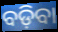
ବଡ଼ିବା